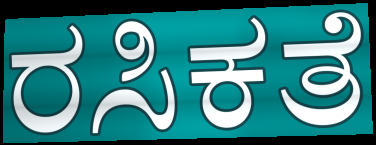
ರಸಿಕತೆ